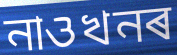
নাওখনৰ